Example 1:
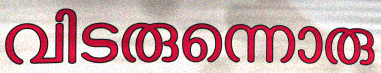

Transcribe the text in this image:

വിടരുന്നൊരു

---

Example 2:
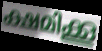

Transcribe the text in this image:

ക്ഷമിക്കൂ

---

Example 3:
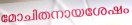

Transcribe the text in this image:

മോചിതനായശേഷം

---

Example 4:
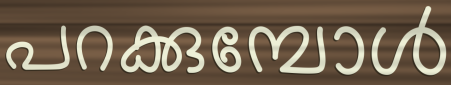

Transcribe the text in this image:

പറക്കുമ്പോൾ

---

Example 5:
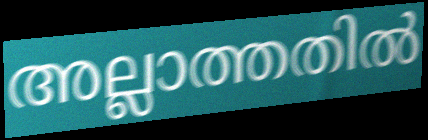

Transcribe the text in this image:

അല്ലാത്തതിൽ